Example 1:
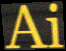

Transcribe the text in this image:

Ai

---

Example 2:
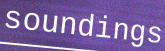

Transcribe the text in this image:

soundings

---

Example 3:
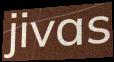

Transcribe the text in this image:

jivas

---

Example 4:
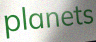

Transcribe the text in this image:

planets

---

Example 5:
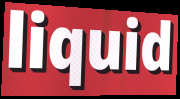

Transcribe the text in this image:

liquid